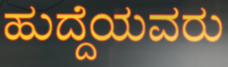
ಹುದ್ದೆಯವರು